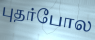
புதர்போல